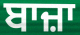
ਬਾਜ਼ਾ